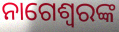
ନାଗେଶ୍ୱରଙ୍କ